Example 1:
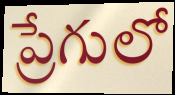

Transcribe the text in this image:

ప్రేగులో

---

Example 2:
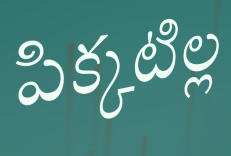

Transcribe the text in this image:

పిక్కటిల్ల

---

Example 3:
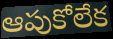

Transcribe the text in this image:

ఆపుకోలేక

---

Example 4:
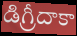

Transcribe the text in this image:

డిగ్రీదాకా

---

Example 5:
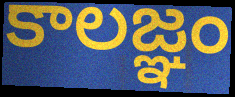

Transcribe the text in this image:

కాలజ్ఞం